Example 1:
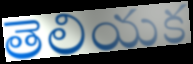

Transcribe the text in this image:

తెలియక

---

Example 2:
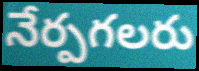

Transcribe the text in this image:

నేర్పగలరు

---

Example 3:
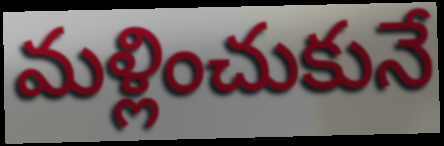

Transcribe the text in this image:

మళ్లించుకునే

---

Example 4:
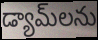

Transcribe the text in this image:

డ్యామ్‌లను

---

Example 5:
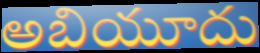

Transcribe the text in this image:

అబియూదు